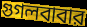
গুগলবাবার